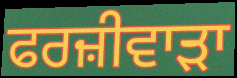
ਫਰਜ਼ੀਵਾੜਾ